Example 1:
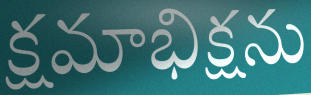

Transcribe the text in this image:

క్షమాభిక్షను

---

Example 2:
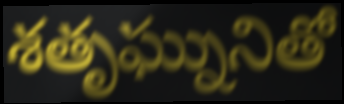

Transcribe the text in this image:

శతృఘ్నునితో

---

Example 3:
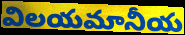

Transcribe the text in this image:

విలయమానీయ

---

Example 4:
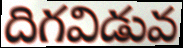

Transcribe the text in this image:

దిగవిడువ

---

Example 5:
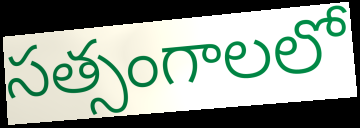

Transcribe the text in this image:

సత్సంగాలలో